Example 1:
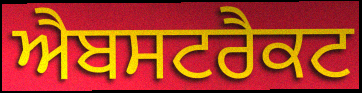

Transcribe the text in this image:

ਐਬਸਟਰੈਕਟ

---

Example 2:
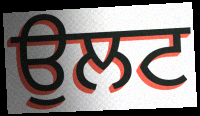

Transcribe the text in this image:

ਉਲਟ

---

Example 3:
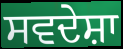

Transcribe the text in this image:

ਸਵਦੇਸ਼ਾ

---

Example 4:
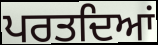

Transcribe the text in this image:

ਪਰਤਦਿਆਂ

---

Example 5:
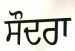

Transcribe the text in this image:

ਸੌਦਰਾ